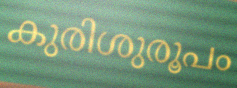
കുരിശുരൂപം